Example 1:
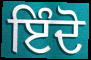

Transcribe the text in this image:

ਇੰਦੋ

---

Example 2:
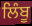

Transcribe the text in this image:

ਲਿੰਬੂ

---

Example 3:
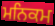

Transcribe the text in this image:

ਮਨਿਕਮ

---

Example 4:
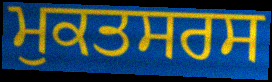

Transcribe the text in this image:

ਮੁਕਤਸਰਸ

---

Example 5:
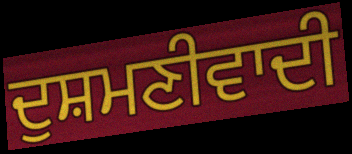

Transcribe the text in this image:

ਦੁਸ਼ਮਣੀਵਾਦੀ